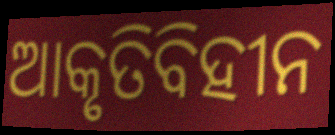
ଆକୃତିବିହୀନ